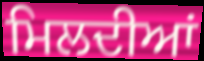
ਮਿਲਦੀਆਂ